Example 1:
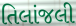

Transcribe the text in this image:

તિલાંજલી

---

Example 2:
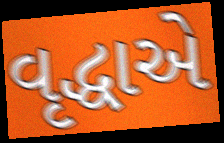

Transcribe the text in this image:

વૃદ્ધાએ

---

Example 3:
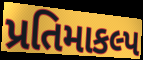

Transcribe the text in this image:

પ્રતિમાકલ્પ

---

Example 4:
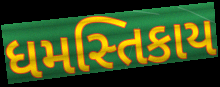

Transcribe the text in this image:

ધમસ્તિકાય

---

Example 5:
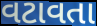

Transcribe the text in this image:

વટાવતા